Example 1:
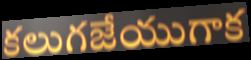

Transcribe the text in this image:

కలుగజేయుగాక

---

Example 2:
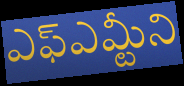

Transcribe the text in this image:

ఎఫ్ఎమ్టీని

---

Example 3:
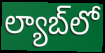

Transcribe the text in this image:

ల్యాబ్‌లో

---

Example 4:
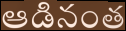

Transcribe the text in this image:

ఆడినంత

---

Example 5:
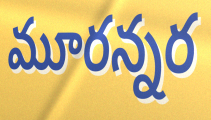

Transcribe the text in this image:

మూరన్నర